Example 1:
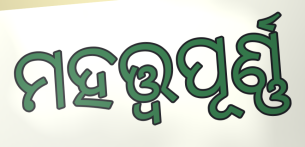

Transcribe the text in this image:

ମହତ୍ତ୍ୱପୂର୍ଣ୍ଣ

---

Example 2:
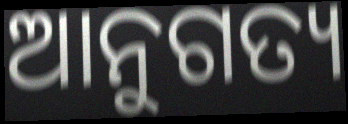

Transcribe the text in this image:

ଆନୁଗତ୍ୟ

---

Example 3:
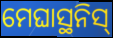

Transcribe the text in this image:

ମେଘାସ୍ଥନିସ୍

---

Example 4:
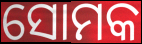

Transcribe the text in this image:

ସୋମକ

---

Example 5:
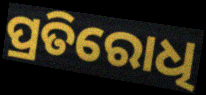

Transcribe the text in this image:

ପ୍ରତିରୋଧି